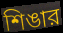
শিঙার